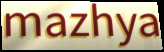
mazhya